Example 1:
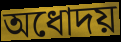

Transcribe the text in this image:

অধোদয়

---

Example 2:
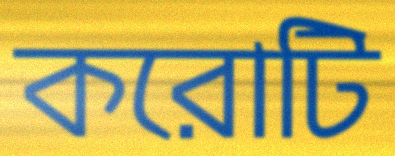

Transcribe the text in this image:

করোটি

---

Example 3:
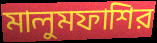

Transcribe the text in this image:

মালুমফাশির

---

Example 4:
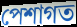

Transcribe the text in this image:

পেশাগত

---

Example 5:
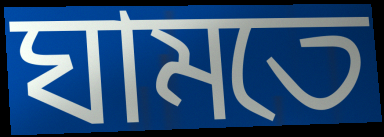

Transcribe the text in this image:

ঘামতে